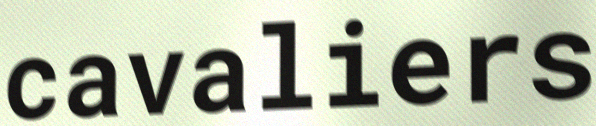
cavaliers